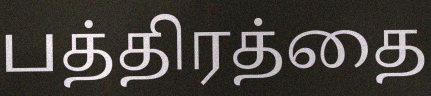
பத்திரத்தை